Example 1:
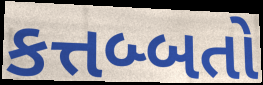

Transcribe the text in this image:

કત્તબ્બતો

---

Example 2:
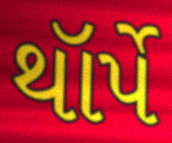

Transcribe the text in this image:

થૉર્પે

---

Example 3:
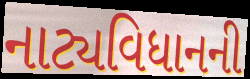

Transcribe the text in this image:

નાટ્યવિધાનની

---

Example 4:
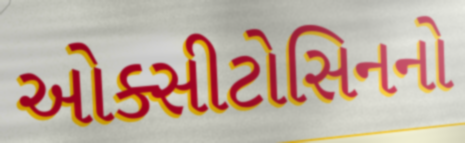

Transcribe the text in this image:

ઓક્સીટોસિનનો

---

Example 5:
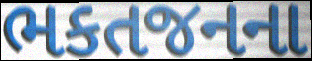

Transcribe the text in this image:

ભકતજનના